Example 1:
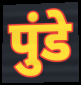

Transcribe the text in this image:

पुंडे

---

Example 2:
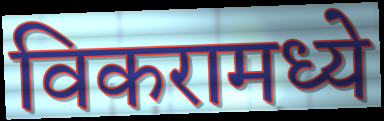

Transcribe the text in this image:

विकरामध्ये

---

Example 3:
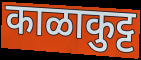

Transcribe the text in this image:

काळाकुट्ट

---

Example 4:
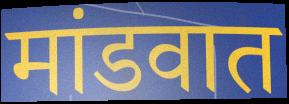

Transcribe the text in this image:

मांडवात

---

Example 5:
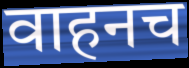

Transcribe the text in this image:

वाहनच